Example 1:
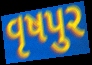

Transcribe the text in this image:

વૃષપુર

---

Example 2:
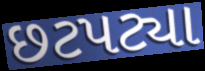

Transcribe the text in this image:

છટપટ્યા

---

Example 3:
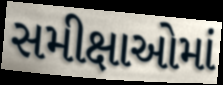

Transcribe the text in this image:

સમીક્ષાઓમાં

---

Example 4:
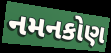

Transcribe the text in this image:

નમનકોણ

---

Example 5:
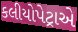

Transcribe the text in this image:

કલીયોપેટ્રાએ